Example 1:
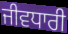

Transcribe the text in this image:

ਜੀਵਧਾਰੀ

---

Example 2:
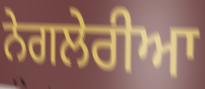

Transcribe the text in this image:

ਨੇਗਲੇਰੀਆ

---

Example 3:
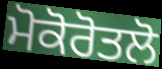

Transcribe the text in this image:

ਮੋਕੋਰੋਤਲੋ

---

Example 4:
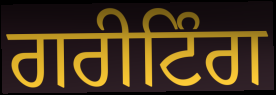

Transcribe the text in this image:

ਗਰੀਟਿੰਗ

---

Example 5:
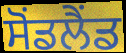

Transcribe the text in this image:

ਸੋਂਡਲੈਂਡ